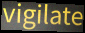
vigilate